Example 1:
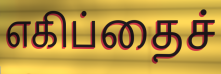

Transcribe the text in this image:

எகிப்தைச்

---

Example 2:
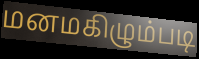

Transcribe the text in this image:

மனமகிழும்படி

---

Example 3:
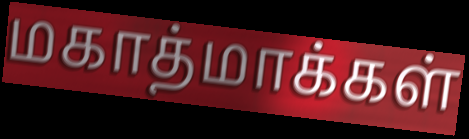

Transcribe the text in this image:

மகாத்மாக்கள்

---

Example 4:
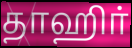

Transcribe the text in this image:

தாஹிர்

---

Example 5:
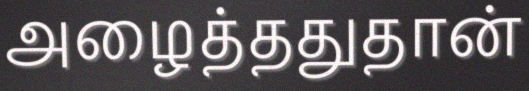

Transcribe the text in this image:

அழைத்ததுதான்